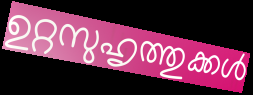
ഉറ്റസുഹൃത്തുക്കൾ